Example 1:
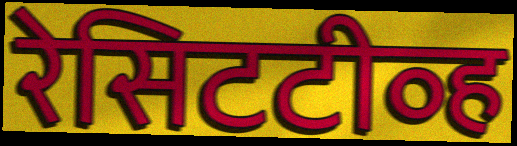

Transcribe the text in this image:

रेसिटटीव्ह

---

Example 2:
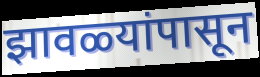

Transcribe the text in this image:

झावळ्यांपासून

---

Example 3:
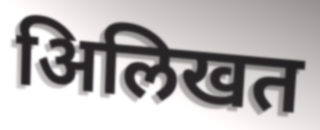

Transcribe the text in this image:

अिलिखत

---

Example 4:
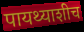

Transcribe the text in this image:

पायथ्याशीच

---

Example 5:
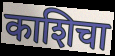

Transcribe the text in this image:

काशिचा